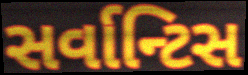
સર્વાન્ટિસ